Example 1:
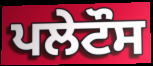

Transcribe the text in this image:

ਪਲੇਟੌਸ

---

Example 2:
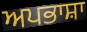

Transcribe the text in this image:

ਅਪਭਾਸ਼ਾ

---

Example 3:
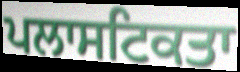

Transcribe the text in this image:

ਪਲਾਸਟਿਕਤਾ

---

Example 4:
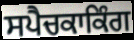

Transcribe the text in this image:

ਸਪੈਚਕਾਕਿੰਗ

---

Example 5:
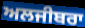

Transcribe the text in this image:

ਅਲਜੀਬਰਾ